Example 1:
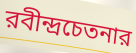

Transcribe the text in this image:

রবীন্দ্রচেতনার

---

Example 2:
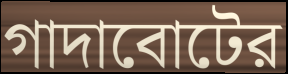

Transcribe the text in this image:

গাদাবোটের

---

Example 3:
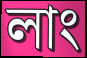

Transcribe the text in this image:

লাং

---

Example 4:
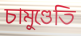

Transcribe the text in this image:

চামুণ্ডেতি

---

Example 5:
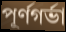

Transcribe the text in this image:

পূর্ণগর্ভা